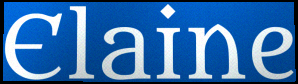
Elaine